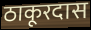
ठाकूरदास